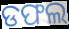
ଡଫଲ